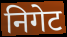
निगेट